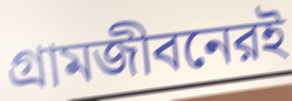
গ্রামজীবনেরই